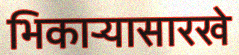
भिकार्‍यासारखे